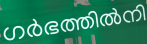
ഗർഭത്തിൽനി